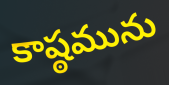
కాష్ఠమును